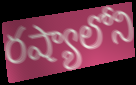
రష్యాలోని